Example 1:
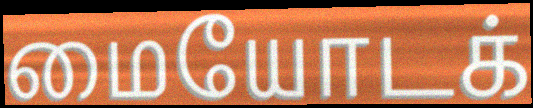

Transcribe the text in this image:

மையோடக்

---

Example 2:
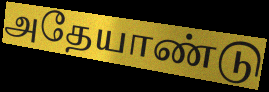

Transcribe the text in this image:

அதேயாண்டு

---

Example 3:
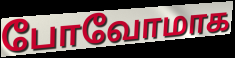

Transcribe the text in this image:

போவோமாக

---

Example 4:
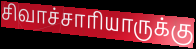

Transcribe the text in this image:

சிவாச்சாரியாருக்கு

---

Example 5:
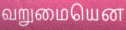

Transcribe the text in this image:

வறுமையென